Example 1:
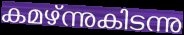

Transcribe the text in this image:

കമഴ്ന്നുകിടന്നു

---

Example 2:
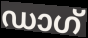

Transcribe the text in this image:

ഡാഗ്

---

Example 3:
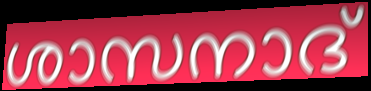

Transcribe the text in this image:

ശാസനാദ്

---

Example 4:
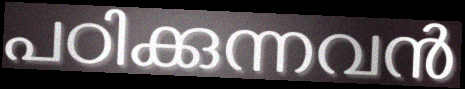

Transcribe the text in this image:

പഠിക്കുന്നവൻ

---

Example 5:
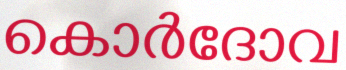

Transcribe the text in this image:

കൊർദോവ